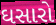
ઘસારો